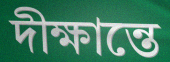
দীক্ষান্তে